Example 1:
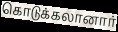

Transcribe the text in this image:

கொடுக்கலானார்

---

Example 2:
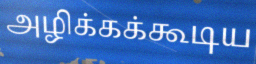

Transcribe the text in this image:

அழிக்கக்கூடிய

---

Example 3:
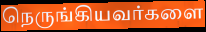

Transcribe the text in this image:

நெருங்கியவர்களை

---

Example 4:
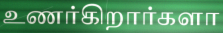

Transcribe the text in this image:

உணர்கிறார்களா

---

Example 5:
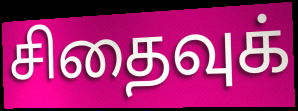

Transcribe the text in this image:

சிதைவுக்